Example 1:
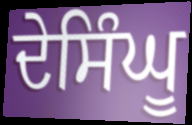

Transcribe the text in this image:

ਦੇਸਿੰਘੂ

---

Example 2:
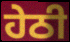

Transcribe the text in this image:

ਹੇਠੀ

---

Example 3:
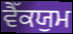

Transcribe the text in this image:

ਵੈੱਕਯੁਮ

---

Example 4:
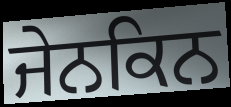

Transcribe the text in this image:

ਜੇਨਕਿਨ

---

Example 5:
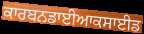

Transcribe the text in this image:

ਕਾਰਬਨਡਾਈਆਕਸਾਈਡ